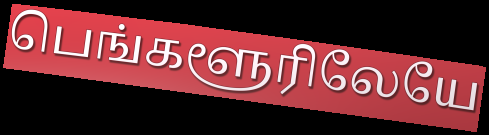
பெங்களூரிலேயே